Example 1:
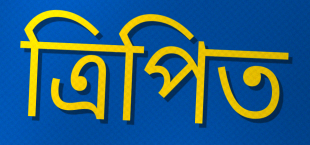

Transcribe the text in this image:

ত্রিপিত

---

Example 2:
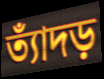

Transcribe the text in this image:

ত্যাঁদড়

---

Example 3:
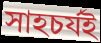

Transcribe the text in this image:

সাহচর্যই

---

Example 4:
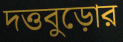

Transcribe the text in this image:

দত্তবুড়োর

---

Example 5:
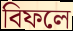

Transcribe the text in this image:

বিফলে